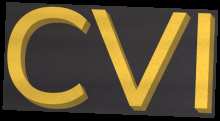
CVI